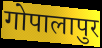
गोपालापुर